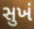
સુખં